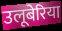
उलूबेरिया